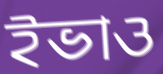
ইভাও